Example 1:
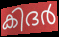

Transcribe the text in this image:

കിദർ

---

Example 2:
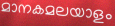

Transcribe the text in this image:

മാനകമലയാളം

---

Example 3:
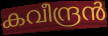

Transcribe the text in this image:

കവീന്ദ്രൻ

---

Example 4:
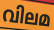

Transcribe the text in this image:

വിലമ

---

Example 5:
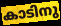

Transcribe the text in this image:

കാടിനു